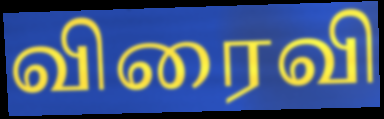
விரைவி